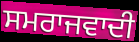
ਸਮਰਾਜਵਾਦੀ